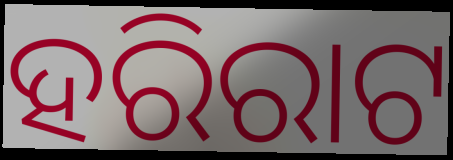
ହରିରାଟ